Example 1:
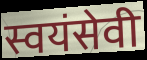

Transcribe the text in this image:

स्वयंसेवी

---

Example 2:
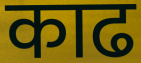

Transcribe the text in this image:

काढ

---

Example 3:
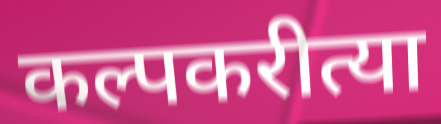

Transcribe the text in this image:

कल्पकरीत्या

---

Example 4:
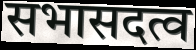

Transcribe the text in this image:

सभासदत्व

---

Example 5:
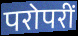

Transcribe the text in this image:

परोपरीं